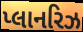
પ્લાનરિઝ